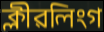
ক্লীৱলিংগ